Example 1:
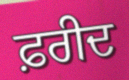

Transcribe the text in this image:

ਫ਼ਰੀਦ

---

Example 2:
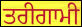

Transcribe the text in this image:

ਤਰੀਗਾਮੀ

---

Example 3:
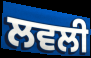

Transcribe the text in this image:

ਲਵਲੀ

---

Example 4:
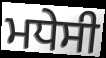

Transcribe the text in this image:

ਮਧੇਸੀ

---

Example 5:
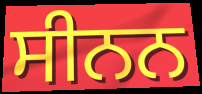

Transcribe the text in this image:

ਸੀਨਨ